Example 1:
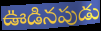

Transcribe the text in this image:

ఊడినపుడు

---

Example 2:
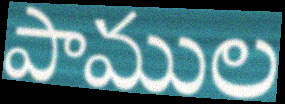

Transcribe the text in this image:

పాముల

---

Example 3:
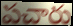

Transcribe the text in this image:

పచారు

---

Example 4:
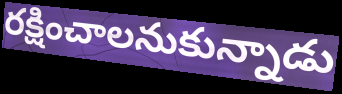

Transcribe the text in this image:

రక్షించాలనుకున్నాడు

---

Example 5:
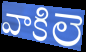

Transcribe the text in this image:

వాకిలె